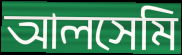
আলসেমি